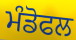
ਮੰਡੋਫਲ